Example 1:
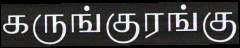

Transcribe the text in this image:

கருங்குரங்கு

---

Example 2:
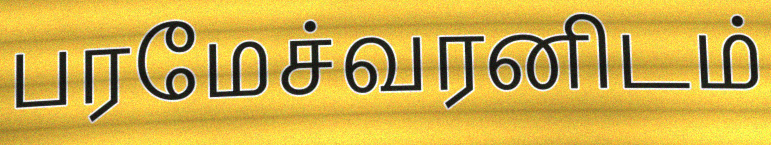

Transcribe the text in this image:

பரமேச்வரனிடம்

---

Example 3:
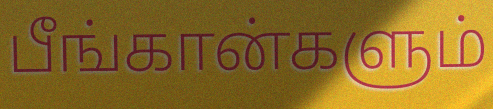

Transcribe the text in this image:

பீங்கான்களும்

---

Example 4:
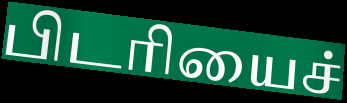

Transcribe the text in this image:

பிடரியைச்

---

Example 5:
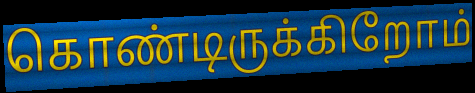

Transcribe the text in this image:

கொண்டிருக்கிறோம்